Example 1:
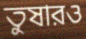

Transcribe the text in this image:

তুষারও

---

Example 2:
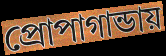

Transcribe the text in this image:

প্রোপাগান্ডায়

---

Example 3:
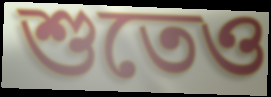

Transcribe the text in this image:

শুতেও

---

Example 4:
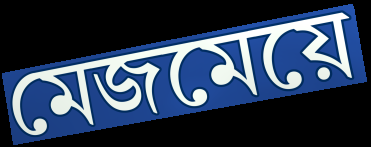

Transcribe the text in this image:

মেজমেয়ে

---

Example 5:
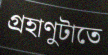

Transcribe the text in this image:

গ্রহাণুটাতে